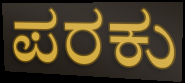
ಪರಕು